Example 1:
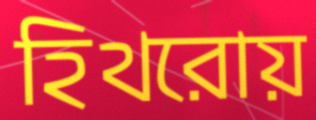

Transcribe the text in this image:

হিথরোয়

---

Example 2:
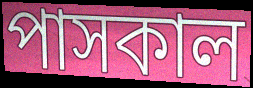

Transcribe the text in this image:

পাসকাল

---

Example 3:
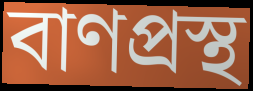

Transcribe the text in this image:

বাণপ্রস্থ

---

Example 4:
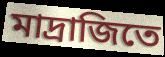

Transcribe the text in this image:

মাদ্রাজিতে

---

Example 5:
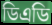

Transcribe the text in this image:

ডিএডি